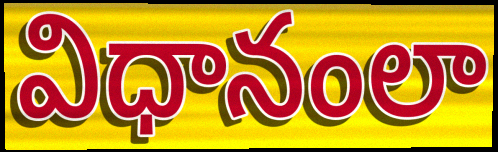
విధానంలా